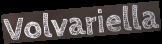
Volvariella